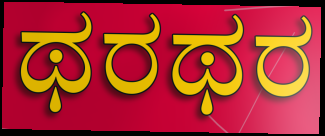
ಥರಥರ